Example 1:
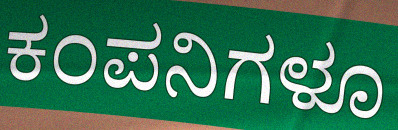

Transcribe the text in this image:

ಕಂಪನಿಗಳೂ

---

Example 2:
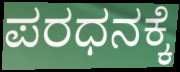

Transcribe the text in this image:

ಪರಧನಕ್ಕೆ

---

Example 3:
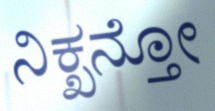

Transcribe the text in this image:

ನಿಕ್ಖನ್ತೋ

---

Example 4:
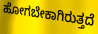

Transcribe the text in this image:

ಹೋಗಬೇಕಾಗಿರುತ್ತದೆ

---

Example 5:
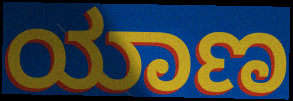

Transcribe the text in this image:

ಯಾಣ